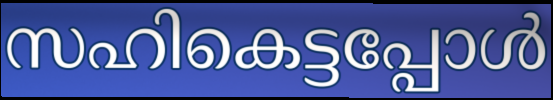
സഹികെട്ടപ്പോൾ